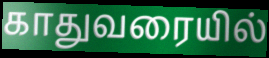
காதுவரையில்